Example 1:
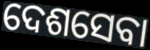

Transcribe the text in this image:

ଦେଶସେବା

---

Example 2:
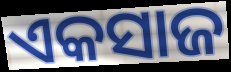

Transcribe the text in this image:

ଏକସାଜ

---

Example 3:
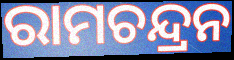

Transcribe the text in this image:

ରାମଚନ୍ଦ୍ରନ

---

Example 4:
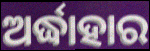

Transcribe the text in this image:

ଅର୍ଦ୍ଧାହାର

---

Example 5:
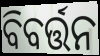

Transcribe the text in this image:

ବିବର୍ତ୍ତନ